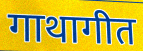
गाथागीत